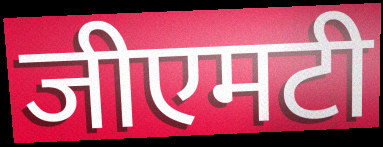
जीएमटी